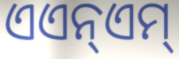
ଏଏନ୍ଏମ୍